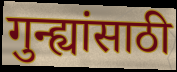
गुन्ह्यांसाठी